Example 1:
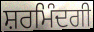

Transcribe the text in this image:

ਸ਼ਰਮਿੰਦਗੀ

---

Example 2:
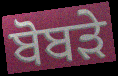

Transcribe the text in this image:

ਬੋਬੜੇ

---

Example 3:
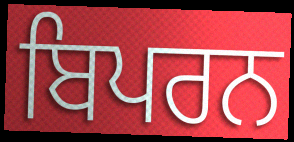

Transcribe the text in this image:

ਬਿਪਰਨ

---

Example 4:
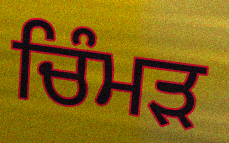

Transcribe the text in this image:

ਚਿੰਮੜ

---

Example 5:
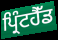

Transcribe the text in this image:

ਪ੍ਰਿੰਟਹੈੱਡ